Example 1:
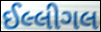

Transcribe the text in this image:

ઈલ્લીગલ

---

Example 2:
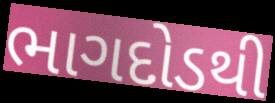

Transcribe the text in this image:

ભાગદોડથી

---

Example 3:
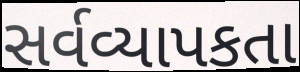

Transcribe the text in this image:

સર્વવ્યાપકતા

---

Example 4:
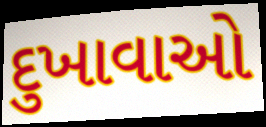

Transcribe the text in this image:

દુખાવાઓ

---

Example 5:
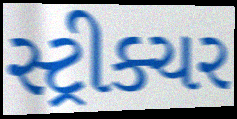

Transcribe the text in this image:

સ્ટ્રીક્ચર